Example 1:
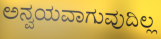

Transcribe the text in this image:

ಅನ್ವಯವಾಗುವುದಿಲ್ಲ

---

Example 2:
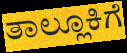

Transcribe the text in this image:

ತಾಲ್ಲೂಕಿಗೆ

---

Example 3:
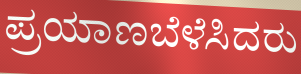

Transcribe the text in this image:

ಪ್ರಯಾಣಬೆಳೆಸಿದರು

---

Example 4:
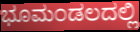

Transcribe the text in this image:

ಭೂಮಂಡಲದಲ್ಲಿ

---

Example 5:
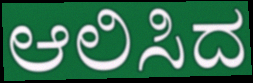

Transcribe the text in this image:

ಆಲಿಸಿದ